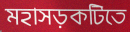
মহাসড়কটিতে